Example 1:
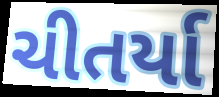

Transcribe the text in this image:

ચીતર્યા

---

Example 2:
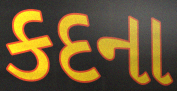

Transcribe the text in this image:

કદના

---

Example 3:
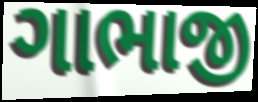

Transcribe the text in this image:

ગાભાજી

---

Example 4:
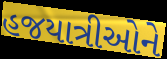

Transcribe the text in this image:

હજયાત્રીઓને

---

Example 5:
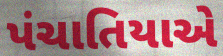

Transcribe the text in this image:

પંચાતિયાએ